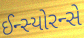
ઈન્સ્યોરન્સે